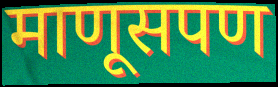
माणूसपण